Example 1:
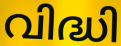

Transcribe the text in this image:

വിദ്ധി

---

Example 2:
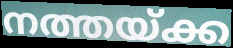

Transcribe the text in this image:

നത്തയ്ക്ക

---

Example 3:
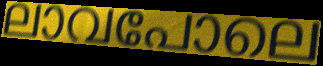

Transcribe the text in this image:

ലാവപോലെ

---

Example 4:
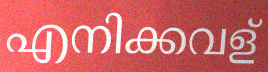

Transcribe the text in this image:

എനിക്കവള്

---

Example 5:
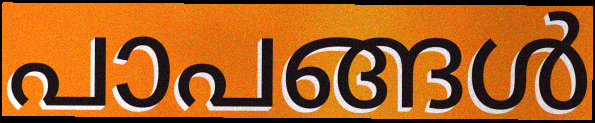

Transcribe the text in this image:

പാപങ്ങൾ